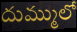
దుమ్ములో